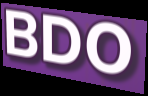
BDO